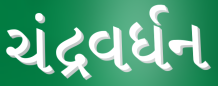
ચંદ્રવર્ધન